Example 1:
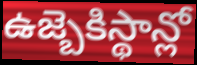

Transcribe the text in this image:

ఉజ్బెకిస్థాన్లో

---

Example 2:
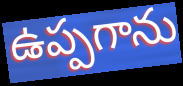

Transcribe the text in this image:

ఉప్పగాను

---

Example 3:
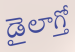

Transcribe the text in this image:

డైలాగ్తో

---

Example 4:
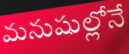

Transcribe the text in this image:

మనుషుల్లోనే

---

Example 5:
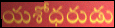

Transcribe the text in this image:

యశోధరుడు